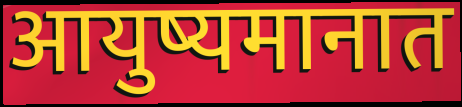
आयुष्यमानात